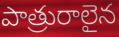
పాత్రురాలైన